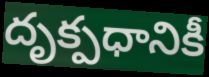
దృక్పధానికీ